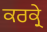
ਕਰਕ੍ਰੇ